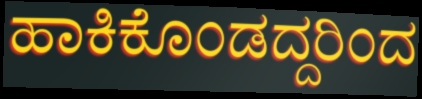
ಹಾಕಿಕೊಂಡದ್ದರಿಂದ